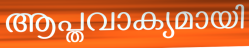
ആപ്തവാക്യമായി